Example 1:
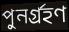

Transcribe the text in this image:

পুনর্গ্রহণ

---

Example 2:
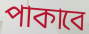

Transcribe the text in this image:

পাকাবে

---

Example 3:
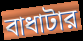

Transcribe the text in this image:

বাধাটার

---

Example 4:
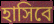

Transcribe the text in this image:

হাসিবে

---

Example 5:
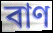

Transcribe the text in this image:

বাণ